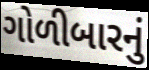
ગોળીબારનું